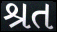
શ્રત